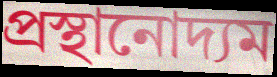
প্রস্থানোদ্যম